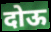
दोऊ